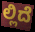
ಲ್ಲಿದೆ